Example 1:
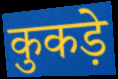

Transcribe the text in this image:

कुकड़े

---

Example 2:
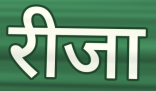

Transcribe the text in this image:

रीजा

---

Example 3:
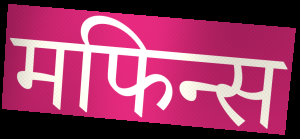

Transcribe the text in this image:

मफिन्स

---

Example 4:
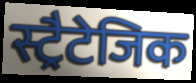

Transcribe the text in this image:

स्ट्रैटेजिक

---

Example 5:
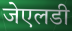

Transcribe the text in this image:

जेएलडी